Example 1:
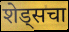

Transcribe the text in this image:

शेड्सचा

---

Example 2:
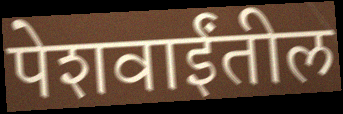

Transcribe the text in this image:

पेशवाईंतील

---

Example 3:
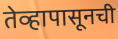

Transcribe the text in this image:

तेव्हापासूनची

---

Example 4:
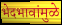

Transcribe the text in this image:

भेदभावांमुळे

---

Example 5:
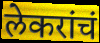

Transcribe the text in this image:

लेकरांचं